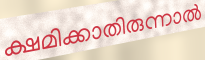
ക്ഷമിക്കാതിരുന്നാൽ